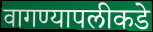
वागण्यापलीकडे